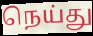
நெய்து